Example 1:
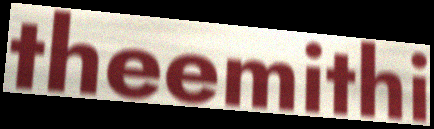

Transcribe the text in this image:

theemithi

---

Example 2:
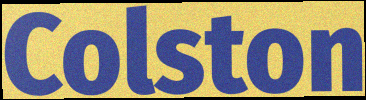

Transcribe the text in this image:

Colston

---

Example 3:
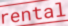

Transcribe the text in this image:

rental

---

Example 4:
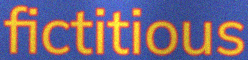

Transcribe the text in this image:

fictitious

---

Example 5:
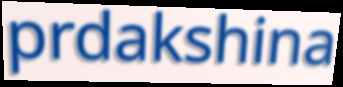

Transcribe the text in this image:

prdakshina